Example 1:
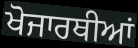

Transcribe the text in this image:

ਖੋਜਾਰਥੀਆਂ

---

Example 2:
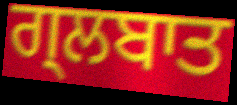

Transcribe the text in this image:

ਗ੍ਲਬਾਤ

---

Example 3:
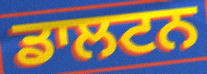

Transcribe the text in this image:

ਡਾਲਟਨ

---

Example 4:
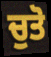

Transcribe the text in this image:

ਚੁਤੋ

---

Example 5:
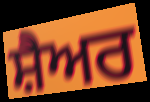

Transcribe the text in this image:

ਸ਼ੈਅਰ